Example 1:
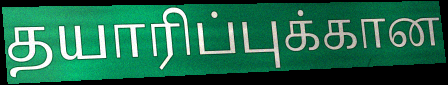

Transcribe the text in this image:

தயாரிப்புக்கான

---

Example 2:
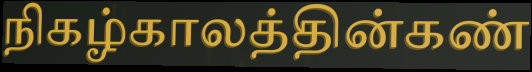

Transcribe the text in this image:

நிகழ்காலத்தின்கண்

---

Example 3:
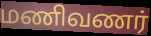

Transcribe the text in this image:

மணிவணர்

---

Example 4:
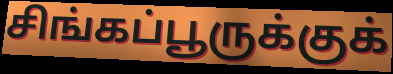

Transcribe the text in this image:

சிங்கப்பூருக்குக்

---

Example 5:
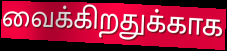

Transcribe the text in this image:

வைக்கிறதுக்காக